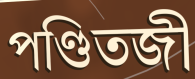
পণ্ডিতজী